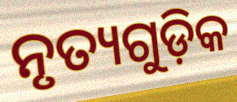
ନୃତ୍ୟଗୁଡ଼ିକ